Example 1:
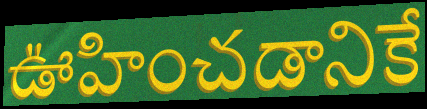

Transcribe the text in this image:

ఊహించడానికే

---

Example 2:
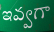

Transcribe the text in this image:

ఇవ్వగా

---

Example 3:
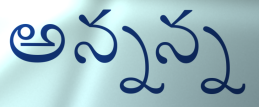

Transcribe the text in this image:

అన్నన్న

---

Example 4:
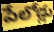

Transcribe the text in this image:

పేలోడ్లు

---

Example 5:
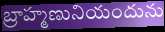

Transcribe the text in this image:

బ్రాహ్మణునియందును